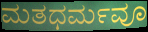
ಮತಧರ್ಮವೂ